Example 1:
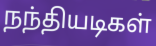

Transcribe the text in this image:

நந்தியடிகள்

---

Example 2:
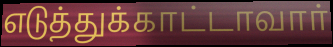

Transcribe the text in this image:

எடுத்துக்காட்டாவார்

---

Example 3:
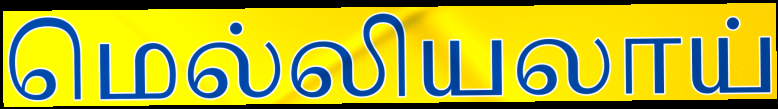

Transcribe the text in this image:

மெல்லியலாய்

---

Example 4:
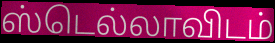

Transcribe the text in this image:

ஸ்டெல்லாவிடம்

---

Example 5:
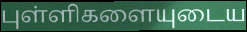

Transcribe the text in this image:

புள்ளிகளையுடைய